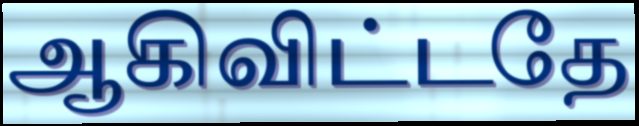
ஆகிவிட்டதே